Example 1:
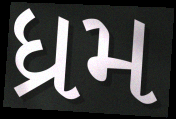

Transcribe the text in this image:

ધ્રમ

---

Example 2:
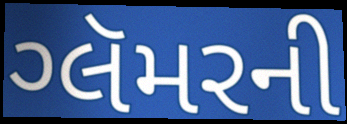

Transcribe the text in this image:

ગ્લૅમરની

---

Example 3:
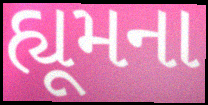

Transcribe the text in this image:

હ્યૂમના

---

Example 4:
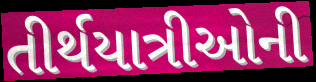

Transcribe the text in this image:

તીર્થયાત્રીઓની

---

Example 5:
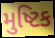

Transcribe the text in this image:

મુષ્ટિક